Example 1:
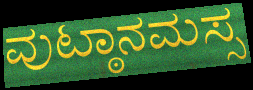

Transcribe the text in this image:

ವುಟ್ಠಾನಮಸ್ಸ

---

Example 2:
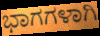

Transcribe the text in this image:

ಭಾಗಗಳಾಗಿ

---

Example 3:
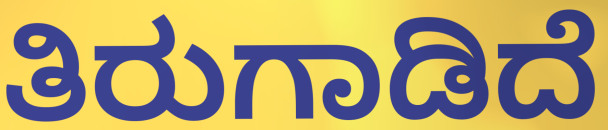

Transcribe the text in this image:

ತಿರುಗಾಡಿದೆ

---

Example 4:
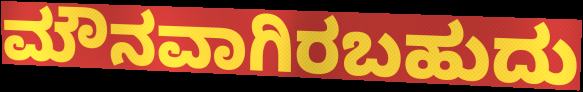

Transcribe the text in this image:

ಮೌನವಾಗಿರಬಹುದು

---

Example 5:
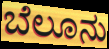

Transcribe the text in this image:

ಬೆಲೂನು